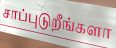
சாப்புடுறீங்களா